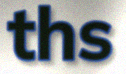
ths